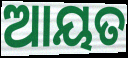
ଆୟତ